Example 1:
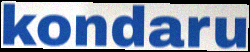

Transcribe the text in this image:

kondaru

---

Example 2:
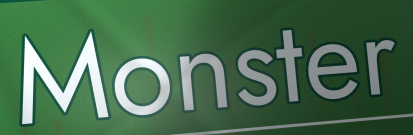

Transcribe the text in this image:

Monster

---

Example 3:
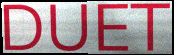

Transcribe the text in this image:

DUET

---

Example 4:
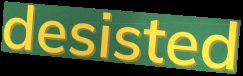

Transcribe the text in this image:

desisted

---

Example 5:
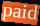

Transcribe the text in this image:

paid